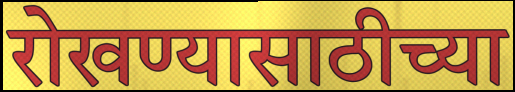
रोखण्यासाठीच्या